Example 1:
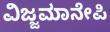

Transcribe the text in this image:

ವಿಜ್ಜಮಾನೇಪಿ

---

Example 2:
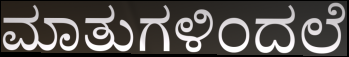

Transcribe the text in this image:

ಮಾತುಗಳಿಂದಲೆ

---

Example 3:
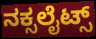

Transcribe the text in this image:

ನಕ್ಸಲೈಟ್ಸ್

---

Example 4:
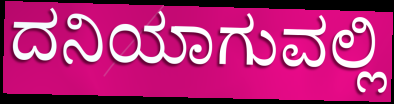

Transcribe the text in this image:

ದನಿಯಾಗುವಲ್ಲಿ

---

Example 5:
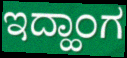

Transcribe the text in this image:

ಇದ್ಹಾಂಗ